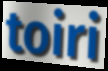
toiri